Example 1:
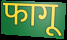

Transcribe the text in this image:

फागू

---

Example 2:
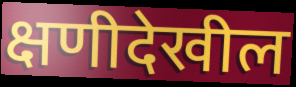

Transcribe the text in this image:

क्षणीदेखील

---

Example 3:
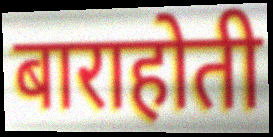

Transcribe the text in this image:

बाराहोती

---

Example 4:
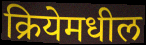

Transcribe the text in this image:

क्रियेमधील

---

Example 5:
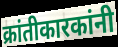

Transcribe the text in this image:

क्रांतीकारकांनी